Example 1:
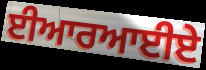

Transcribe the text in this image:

ਈਆਰਆਈਏ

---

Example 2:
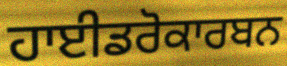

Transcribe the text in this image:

ਹਾਈਡਰੋਕਾਰਬਨ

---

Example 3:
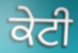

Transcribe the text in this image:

ਕੇਟੀ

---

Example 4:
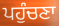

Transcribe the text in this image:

ਪਹੁੰਚਣਾ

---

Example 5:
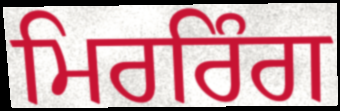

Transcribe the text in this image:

ਮਿਰਰਿੰਗ